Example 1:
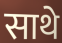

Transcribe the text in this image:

साथे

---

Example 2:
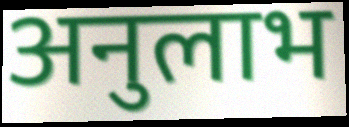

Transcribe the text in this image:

अनुलाभ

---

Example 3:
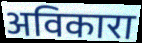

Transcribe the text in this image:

अविकारा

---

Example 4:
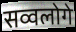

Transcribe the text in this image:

सव्वलोगे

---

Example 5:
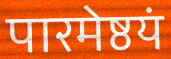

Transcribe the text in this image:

पारमेष्ठयं